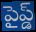
పైప్డ్